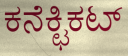
ಕನೆಕ್ಟಿಕಟ್